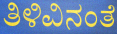
ತಿಳಿವಿನಂತೆ